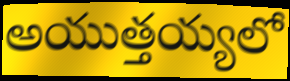
అయుత్తయ్యలో